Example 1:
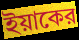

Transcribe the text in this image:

ইয়াকের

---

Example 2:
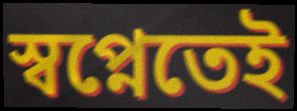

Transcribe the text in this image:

স্বপ্নেতেই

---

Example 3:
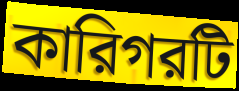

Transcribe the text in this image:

কারিগরটি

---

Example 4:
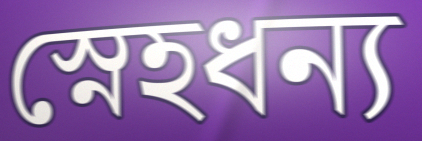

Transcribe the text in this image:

স্নেহধন্য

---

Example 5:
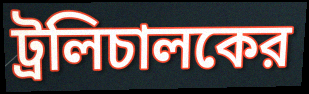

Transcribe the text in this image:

ট্রলিচালকের